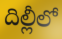
దిల్లీలో